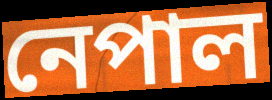
নেপাল